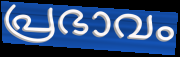
പ്രഭാവം